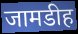
जामडीह